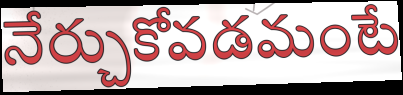
నేర్చుకోవడమంటే